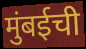
मुंबईची